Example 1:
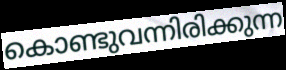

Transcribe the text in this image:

കൊണ്ടുവന്നിരിക്കുന്ന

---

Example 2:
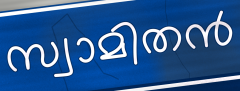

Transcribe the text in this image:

സ്വാമിതൻ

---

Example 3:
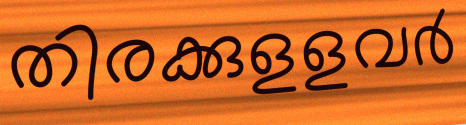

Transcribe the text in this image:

തിരക്കുളളവർ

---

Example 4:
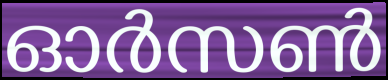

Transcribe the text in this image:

ഓർസൺ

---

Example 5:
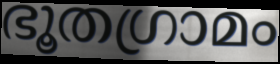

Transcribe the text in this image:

ഭൂതഗ്രാമം